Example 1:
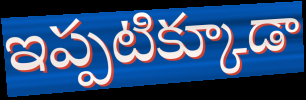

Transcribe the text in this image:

ఇప్పటిక్కూడా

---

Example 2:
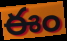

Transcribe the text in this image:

ఈం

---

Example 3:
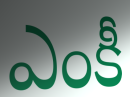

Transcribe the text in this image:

ఎంకీ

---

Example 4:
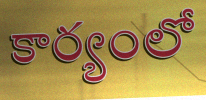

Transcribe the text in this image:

కార్యంలో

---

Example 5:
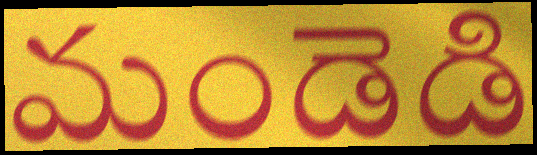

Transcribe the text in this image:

మండెడి